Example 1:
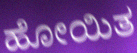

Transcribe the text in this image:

ಹೋಯಿತ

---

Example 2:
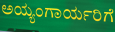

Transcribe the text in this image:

ಅಯ್ಯಂಗಾರ್ಯರಿಗೆ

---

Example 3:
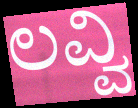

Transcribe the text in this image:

ಲವ್ವಿ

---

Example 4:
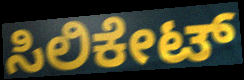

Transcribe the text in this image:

ಸಿಲಿಕೇಟ್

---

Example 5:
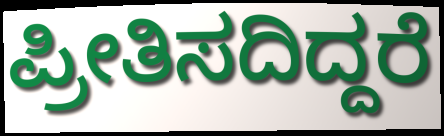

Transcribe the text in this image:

ಪ್ರೀತಿಸದಿದ್ದರೆ